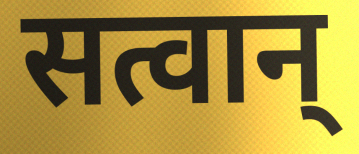
सत्वान्